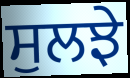
ਸੁਲਝੇ